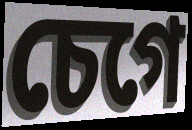
চেগে